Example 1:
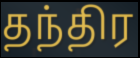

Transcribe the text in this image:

தந்திர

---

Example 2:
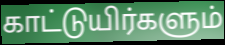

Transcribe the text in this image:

காட்டுயிர்களும்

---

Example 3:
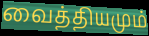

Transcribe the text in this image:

வைத்தியமும்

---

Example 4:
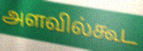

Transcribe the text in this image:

அளவில்கூட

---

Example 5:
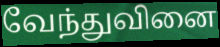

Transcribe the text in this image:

வேந்துவினை